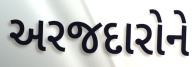
અરજદારોને